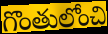
గొంతులోంచి